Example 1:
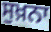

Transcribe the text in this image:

ਸੁਖ਼ਨਾ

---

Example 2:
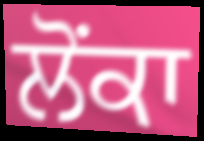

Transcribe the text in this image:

ਲੋਂਕਾ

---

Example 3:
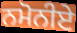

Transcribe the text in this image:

ਨਮੋਨੀਏ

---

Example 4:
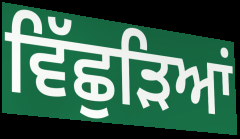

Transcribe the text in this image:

ਵਿੱਛੁੜਿਆਂ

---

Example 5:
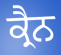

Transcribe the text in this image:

ਕ੍ਰੈਨ